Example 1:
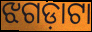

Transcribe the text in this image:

ଝଗଡ଼ାଟା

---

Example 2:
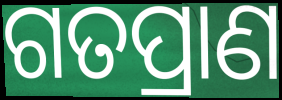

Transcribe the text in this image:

ଗତପ୍ରାଣ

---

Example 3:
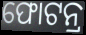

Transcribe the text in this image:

ଫୋଟନ୍ର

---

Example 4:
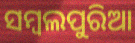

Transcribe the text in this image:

ସମ୍ୱଲପୁରିଆ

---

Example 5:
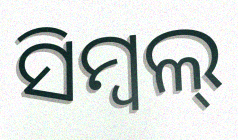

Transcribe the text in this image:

ସିମ୍ବଲ୍